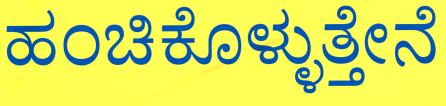
ಹಂಚಿಕೊಳ್ಳುತ್ತೇನೆ